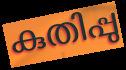
കുതിപ്പു